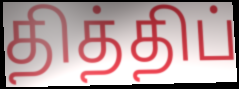
தித்திப்